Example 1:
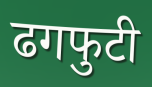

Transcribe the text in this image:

ढगफुटी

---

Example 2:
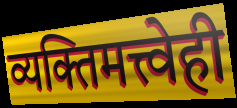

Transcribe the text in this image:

व्यक्तिमत्त्वेही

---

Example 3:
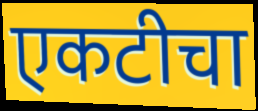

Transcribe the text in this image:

एकटीचा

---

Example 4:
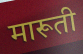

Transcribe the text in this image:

मारूती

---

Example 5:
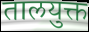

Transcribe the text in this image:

तालयुक्त